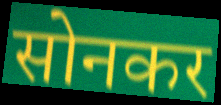
सोनकर